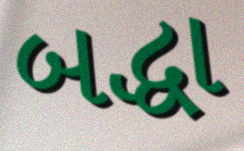
બદ્ધા